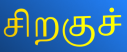
சிறகுச்